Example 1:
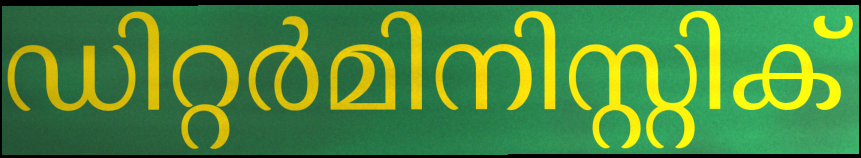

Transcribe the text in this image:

ഡിറ്റർമിനിസ്റ്റിക്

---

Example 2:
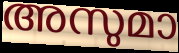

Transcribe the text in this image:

അസുമാ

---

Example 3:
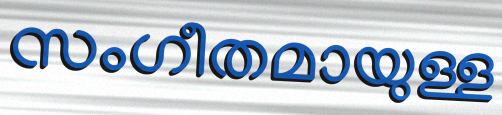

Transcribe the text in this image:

സംഗീതമായുള്ള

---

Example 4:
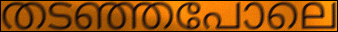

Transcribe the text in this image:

തടഞ്ഞപോലെ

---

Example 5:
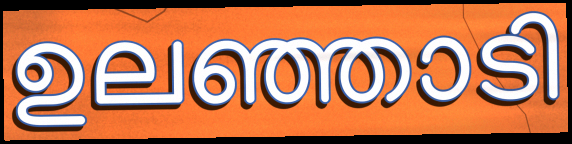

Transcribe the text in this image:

ഉലഞ്ഞാടി